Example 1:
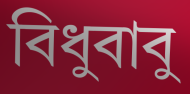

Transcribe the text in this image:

বিধুবাবু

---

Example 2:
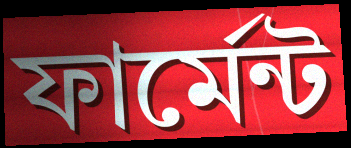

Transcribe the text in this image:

ফার্মেন্ট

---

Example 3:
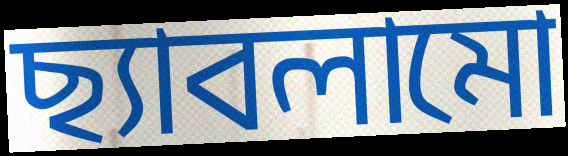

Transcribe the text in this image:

ছ্যাবলামো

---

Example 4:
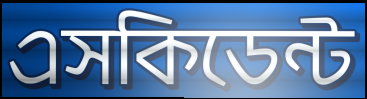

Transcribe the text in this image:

এসকিডেন্ট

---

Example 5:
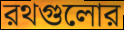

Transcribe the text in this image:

রথগুলোর